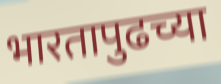
भारतापुढच्या